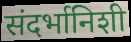
संदर्भानिशी